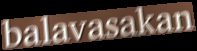
balavasakan